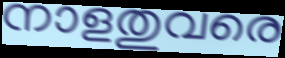
നാളതുവരെ